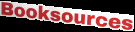
Booksources